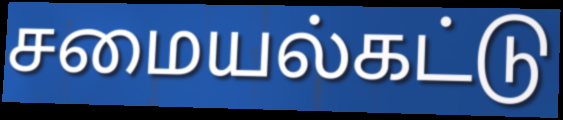
சமையல்கட்டு